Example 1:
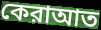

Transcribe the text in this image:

কেরাআত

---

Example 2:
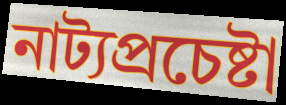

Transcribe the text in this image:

নাট্যপ্রচেষ্টা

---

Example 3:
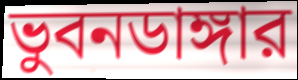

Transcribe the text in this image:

ভুবনডাঙ্গার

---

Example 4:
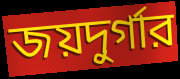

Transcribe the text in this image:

জয়দুর্গার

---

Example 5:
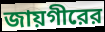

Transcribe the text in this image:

জায়গীরের